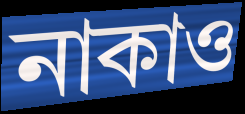
নাকাও